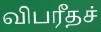
விபரீதச்